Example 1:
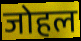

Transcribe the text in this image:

जोहल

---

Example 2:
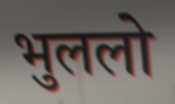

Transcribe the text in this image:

भुललो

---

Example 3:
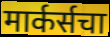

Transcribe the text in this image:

मार्कर्सचा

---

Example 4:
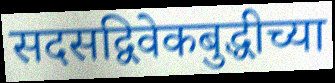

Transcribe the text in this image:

सदसद्विवेकबुद्धीच्या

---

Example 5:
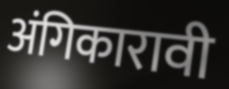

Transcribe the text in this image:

अंगिकारावी